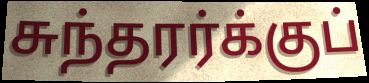
சுந்தரர்க்குப்